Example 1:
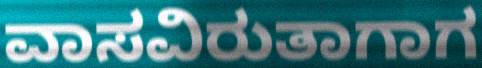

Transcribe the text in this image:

ವಾಸವಿರುತಾಗಾಗ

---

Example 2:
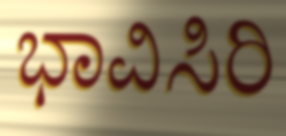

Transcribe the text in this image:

ಭಾವಿಸಿರಿ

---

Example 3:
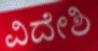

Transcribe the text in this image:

ವಿದೇಶಿ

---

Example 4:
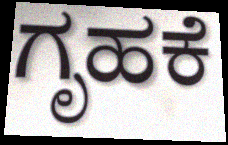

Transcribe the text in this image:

ಗೃಹಕೆ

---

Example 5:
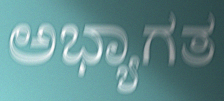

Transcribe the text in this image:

ಅಭ್ಯಾಗತ